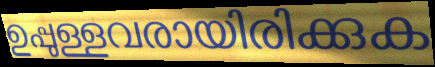
ഉപ്പുള്ളവരായിരിക്കുക